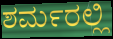
ಶರ್ಮರಲ್ಲಿ